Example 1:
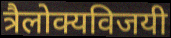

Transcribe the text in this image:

त्रैलोक्यविजयी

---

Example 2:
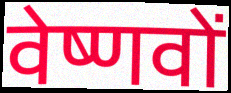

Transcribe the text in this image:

वेष्णवों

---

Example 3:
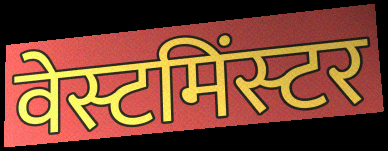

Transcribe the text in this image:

वेस्‍टमिंस्‍टर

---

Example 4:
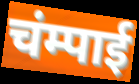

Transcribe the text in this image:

चंम्पाई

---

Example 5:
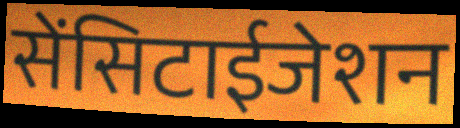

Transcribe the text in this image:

सेंसिटाईजेशन